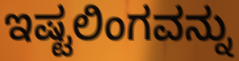
ಇಷ್ಟಲಿಂಗವನ್ನು